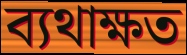
ব্যথাক্ষত